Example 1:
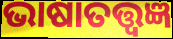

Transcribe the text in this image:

ଭାଷାତତ୍ତ୍ୱଜ୍ଞ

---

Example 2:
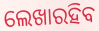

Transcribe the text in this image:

ଲେଖାରହିବ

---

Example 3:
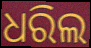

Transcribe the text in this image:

ଧରିଲ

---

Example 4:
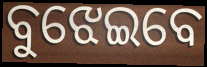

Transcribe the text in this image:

ବୁଝେଇବେ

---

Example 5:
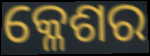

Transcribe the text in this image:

କ୍ଳେଶର